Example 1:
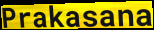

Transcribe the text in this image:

Prakasana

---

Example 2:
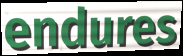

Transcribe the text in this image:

endures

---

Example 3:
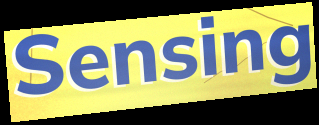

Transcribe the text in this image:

Sensing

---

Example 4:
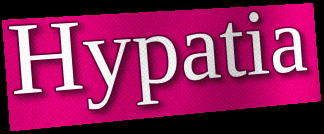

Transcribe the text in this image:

Hypatia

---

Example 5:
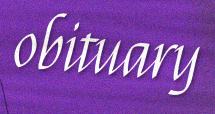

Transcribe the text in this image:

obituary